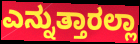
ಎನ್ನುತ್ತಾರಲ್ಲಾ